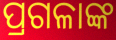
ପ୍ରଗଳାଙ୍କ